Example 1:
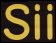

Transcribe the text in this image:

Sii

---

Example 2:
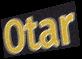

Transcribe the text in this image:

Otar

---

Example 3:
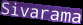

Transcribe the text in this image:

Sivarama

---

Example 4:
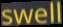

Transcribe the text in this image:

swell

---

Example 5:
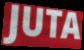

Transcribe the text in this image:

JUTA